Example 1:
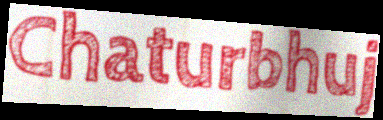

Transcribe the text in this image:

Chaturbhuj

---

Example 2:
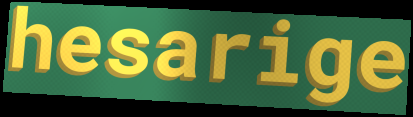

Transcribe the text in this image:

hesarige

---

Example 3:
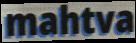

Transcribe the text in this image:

mahtva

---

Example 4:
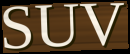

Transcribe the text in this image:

SUV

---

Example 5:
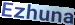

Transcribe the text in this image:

Ezhuna